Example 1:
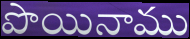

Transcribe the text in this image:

పొయినాము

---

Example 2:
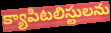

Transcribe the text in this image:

క్యాపిటలిస్టులను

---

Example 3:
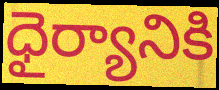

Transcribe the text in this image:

ధైర్యానికి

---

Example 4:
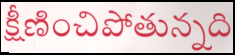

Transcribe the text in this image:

క్షీణించిపోతున్నది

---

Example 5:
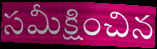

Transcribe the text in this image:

సమీక్షించిన